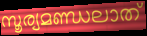
സൂര്യമണ്ഡലാത്